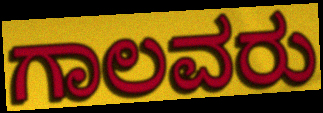
ಗಾಲವರು